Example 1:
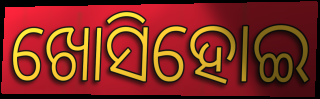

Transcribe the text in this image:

ଖୋସିହୋଇ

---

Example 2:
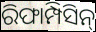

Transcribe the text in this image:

ରିଫାମ୍ପିସିନ୍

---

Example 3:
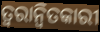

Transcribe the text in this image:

ତ୍ୱରାନ୍ୱିତକାରୀ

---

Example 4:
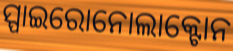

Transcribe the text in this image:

ସ୍ପାଇରୋନୋଲାକ୍ଟୋନ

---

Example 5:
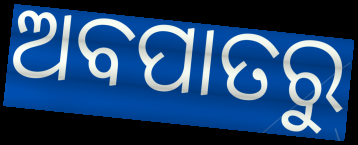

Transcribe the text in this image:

ଅବପାତରୁ